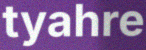
tyahre